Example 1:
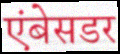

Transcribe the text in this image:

एंबेसडर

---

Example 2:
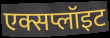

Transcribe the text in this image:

एक्सप्लॉइट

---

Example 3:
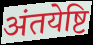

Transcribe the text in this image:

अंतयेष्टि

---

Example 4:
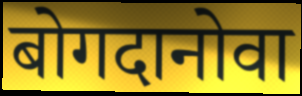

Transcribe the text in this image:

बोगदानोवा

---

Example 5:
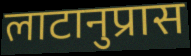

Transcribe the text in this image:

लाटानुप्रास